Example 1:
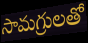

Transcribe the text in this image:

సామగ్రులతో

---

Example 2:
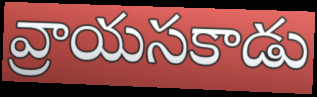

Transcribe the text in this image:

వ్రాయసకాడు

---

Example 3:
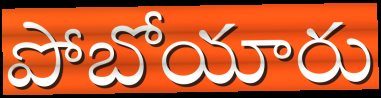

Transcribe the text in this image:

పోబోయారు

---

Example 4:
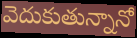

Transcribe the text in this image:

వెదుకుతున్నానో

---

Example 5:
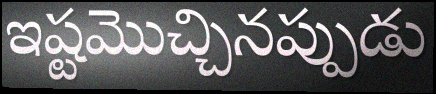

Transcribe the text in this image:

ఇష్టమొచ్చినప్పుడు